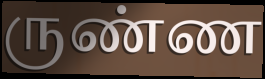
ருண்ண